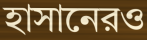
হাসানেরও